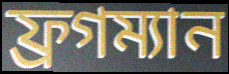
ফ্রগম্যান